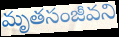
మృతసంజీవని